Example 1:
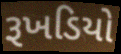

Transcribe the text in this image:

રૂખડિયો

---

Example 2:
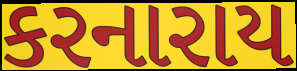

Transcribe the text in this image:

કરનારાય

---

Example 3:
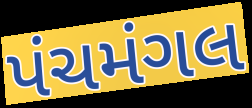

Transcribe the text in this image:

પંચમંગલ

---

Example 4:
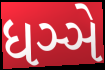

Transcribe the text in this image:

ધઞ્ઞે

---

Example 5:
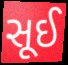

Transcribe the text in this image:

સૂઈ